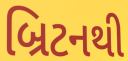
બ્રિટનથી